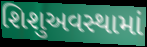
શિશુઅવસ્થામાં